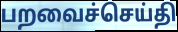
பறவைச்செய்தி